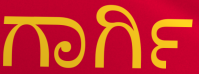
ಗಾರ್ಗಿ